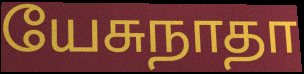
யேசுநாதா